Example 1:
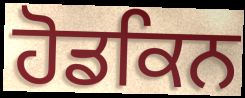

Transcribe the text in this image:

ਹੋਡਕਿਨ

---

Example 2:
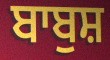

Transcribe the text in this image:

ਬਾਬੁਸ਼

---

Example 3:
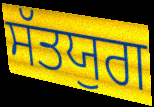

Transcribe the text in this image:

ਸੱਤਯੁਗ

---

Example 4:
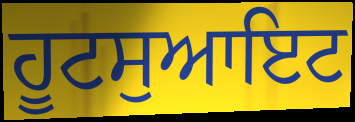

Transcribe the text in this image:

ਹੂਟਸੁਆਇਟ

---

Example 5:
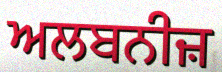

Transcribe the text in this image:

ਅਲਬਨੀਜ਼